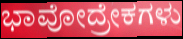
ಭಾವೋದ್ರೇಕಗಳು